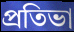
প্রতিভা